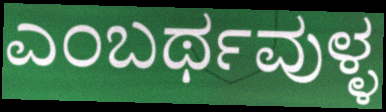
ಎಂಬರ್ಥವುಳ್ಳ